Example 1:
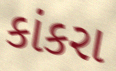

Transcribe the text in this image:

કાંકરા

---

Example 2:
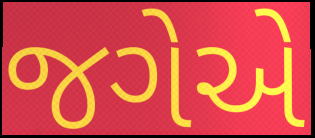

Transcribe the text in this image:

જગેએ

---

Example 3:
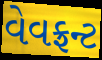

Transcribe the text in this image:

વેવફ્રન્ટ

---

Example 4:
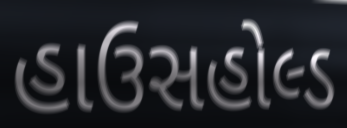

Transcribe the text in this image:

હાઉસહોલ્ડ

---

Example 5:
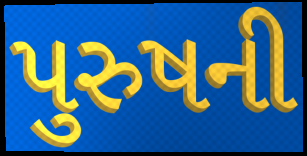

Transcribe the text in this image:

પુરુષની